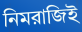
নিমরাজিই